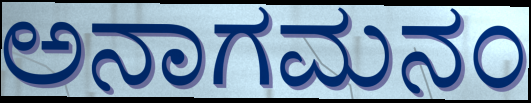
ಅನಾಗಮನಂ